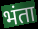
भंता